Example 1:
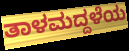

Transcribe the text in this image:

ತಾಳಮದ್ದಳೆಯ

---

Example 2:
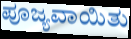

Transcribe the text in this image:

ಪೂಜ್ಯವಾಯಿತು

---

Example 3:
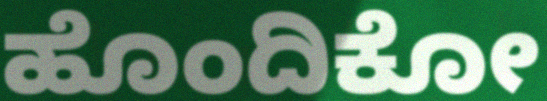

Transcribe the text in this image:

ಹೊಂದಿಕೋ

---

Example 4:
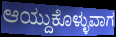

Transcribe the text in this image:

ಆಯ್ದುಕೊಳ್ಳುವಾಗ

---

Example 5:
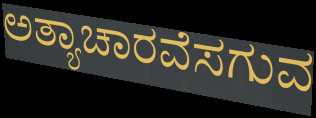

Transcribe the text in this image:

ಅತ್ಯಾಚಾರವೆಸಗುವ